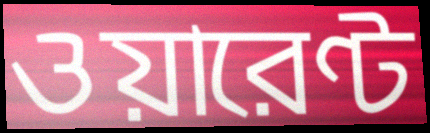
ওয়ারেণ্ট